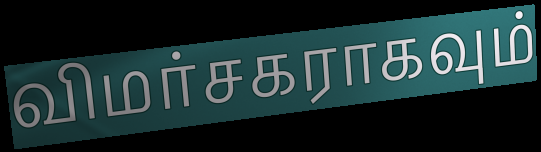
விமர்சகராகவும்